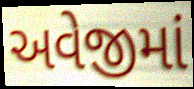
અવેજીમાં